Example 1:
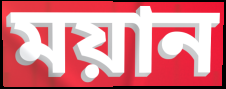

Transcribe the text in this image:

ময়ান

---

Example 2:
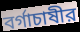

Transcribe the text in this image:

বর্গাচাষীর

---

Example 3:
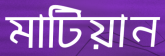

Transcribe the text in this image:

মাটিয়ান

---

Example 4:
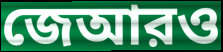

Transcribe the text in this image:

জেআরও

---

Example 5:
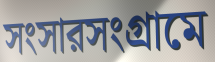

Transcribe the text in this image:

সংসারসংগ্রামে